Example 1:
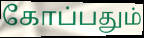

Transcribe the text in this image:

கோப்பதும்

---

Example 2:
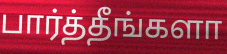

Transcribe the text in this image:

பார்த்தீங்களா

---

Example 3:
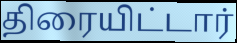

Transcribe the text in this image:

திரையிட்டார்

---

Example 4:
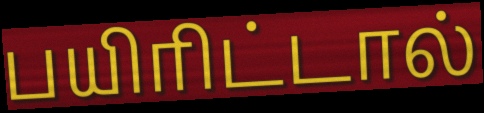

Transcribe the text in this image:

பயிரிட்டால்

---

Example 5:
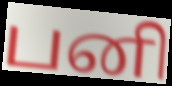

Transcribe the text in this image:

பனி